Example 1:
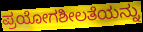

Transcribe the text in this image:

ಪ್ರಯೋಗಶೀಲತೆಯನ್ನು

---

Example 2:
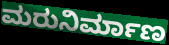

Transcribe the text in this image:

ಮರುನಿರ್ಮಾಣ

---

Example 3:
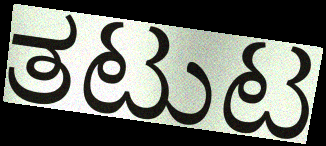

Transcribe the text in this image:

ತಟುಟ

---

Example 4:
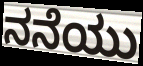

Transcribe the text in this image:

ನನೆಯು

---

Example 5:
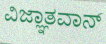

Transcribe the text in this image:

ವಿಜ್ಞಾತವಾನ್